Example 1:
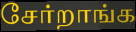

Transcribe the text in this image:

சேர்றாங்க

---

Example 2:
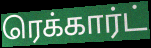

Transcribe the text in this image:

ரெக்கார்ட்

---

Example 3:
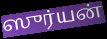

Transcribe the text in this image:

ஸுர்யன்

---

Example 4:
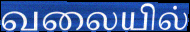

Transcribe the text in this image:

வலையில்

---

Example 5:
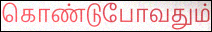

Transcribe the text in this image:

கொண்டுபோவதும்